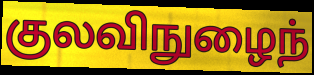
குலவிநுழைந்